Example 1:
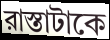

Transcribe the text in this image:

রাস্তাটাকে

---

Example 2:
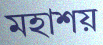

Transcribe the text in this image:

মহাশয়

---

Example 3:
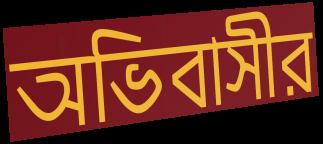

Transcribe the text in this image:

অভিবাসীর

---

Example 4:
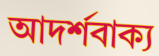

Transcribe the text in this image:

আদর্শবাক্য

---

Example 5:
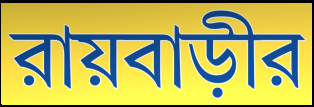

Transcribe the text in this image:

রায়বাড়ীর